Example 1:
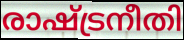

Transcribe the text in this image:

രാഷ്ട്രനീതി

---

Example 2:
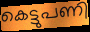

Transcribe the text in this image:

കെട്ടുപണി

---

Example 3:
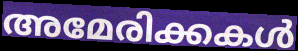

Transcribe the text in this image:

അമേരിക്കകൾ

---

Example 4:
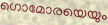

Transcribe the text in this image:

ഗൊമോരയെയും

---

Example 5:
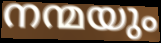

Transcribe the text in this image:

നന്മയും